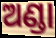
ଅଣ୍ଡା